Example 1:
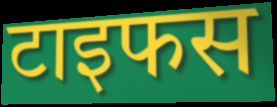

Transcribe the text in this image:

टाइफस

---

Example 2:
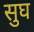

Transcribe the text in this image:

सुघ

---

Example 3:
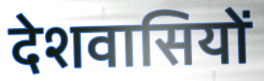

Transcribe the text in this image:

देशवासियों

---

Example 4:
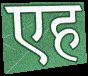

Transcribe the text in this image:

एह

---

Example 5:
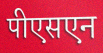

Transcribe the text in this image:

पीएसएन